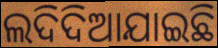
ଲଦିଦିଆଯାଇଛି